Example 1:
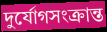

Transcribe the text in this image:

দুর্যোগসংক্রান্ত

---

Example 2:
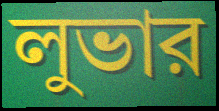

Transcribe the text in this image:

লুভার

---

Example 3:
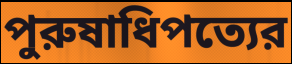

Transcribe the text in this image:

পুরুষাধিপত্যের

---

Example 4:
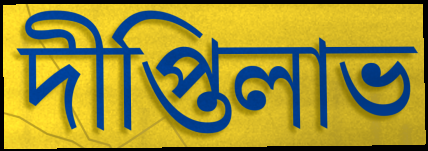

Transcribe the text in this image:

দীপ্তিলাভ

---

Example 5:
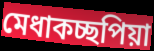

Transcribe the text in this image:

মেধাকচ্ছপিয়া